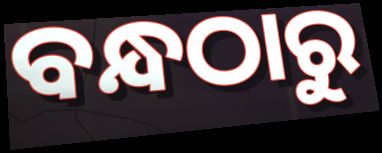
ବନ୍ଧଠାରୁ